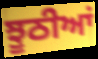
ਝੂਠੀਆਂ